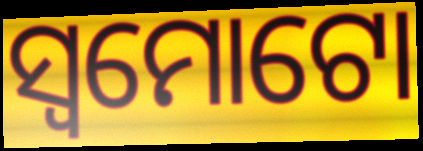
ସ୍ୱମୋଟୋ